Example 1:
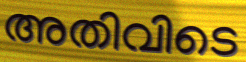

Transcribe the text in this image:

അതിവിടെ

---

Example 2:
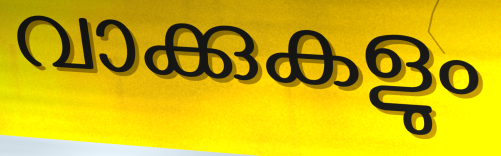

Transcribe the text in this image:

വാക്കുകളും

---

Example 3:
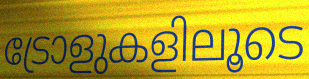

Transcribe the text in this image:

ട്രോളുകളിലൂടെ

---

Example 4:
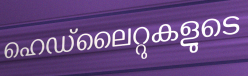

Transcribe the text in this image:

ഹെഡ്‌ലൈറ്റുകളുടെ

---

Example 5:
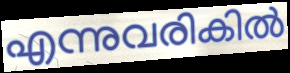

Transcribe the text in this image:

എന്നുവരികിൽ